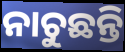
ନାଚୁଛନ୍ତି